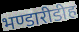
भण्डारीडीह